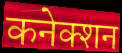
कनेक्शन